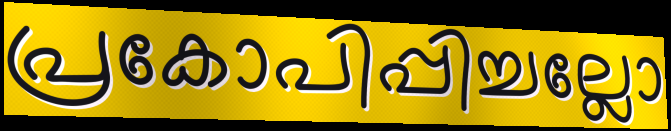
പ്രകോപിപ്പിച്ചല്ലോ